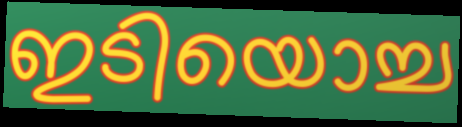
ഇടിയൊച്ച